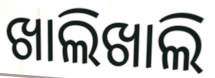
ଖାଲିଖାଲି